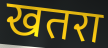
खतरा